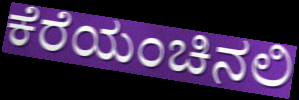
ಕೆರೆಯಂಚಿನಲಿ